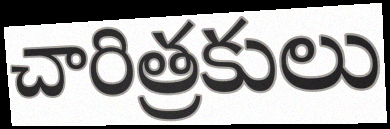
చారిత్రకులు